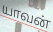
யாவன்